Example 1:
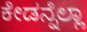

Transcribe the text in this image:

ಕೇಡನ್ನೆಲ್ಲಾ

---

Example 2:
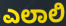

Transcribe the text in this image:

ಎಲಾಲಿ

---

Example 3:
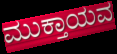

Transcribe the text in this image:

ಮುಕ್ತಾಯವ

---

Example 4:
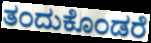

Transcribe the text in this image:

ತಂದುಕೊಂಡರೆ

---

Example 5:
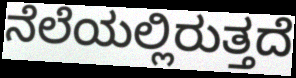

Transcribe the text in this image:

ನೆಲೆಯಲ್ಲಿರುತ್ತದೆ